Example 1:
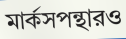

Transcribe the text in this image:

মার্কসপন্থারও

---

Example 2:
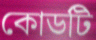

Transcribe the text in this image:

কোডটি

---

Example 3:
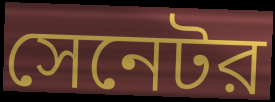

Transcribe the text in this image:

সেনেটর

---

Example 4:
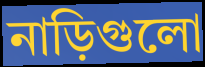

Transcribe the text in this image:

নাড়িগুলো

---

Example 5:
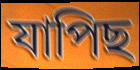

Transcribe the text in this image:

যাপিছ